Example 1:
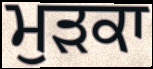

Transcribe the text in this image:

ਮੁੜਕਾ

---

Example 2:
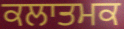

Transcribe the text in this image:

ਕਲਾਤਮਕ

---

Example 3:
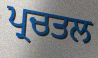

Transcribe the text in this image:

ਪ੍ਰਚਤਲ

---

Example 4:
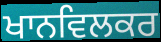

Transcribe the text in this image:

ਖਾਨਵਿਲਕਰ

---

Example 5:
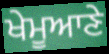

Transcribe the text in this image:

ਖੇਮੂਆਣੇ